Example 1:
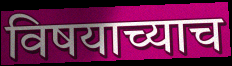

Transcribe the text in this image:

विषयाच्याच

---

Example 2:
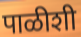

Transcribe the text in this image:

पाळीशी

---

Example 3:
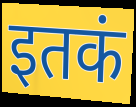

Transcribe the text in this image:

इतकं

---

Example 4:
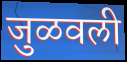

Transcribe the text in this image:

जुळवली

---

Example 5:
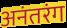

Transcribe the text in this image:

अनंतरंग